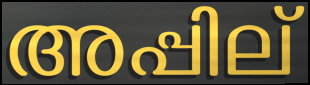
അപ്പില്